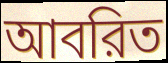
আবরিত